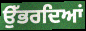
ਉੱਭਰਦਿਆਂ